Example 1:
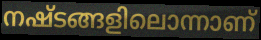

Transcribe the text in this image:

നഷ്ടങ്ങളിലൊന്നാണ്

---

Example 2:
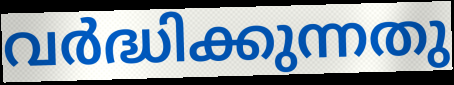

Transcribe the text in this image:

വർദ്ധിക്കുന്നതു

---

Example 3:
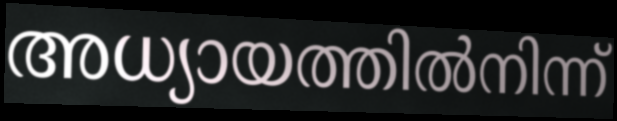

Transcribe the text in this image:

അധ്യായത്തിൽനിന്ന്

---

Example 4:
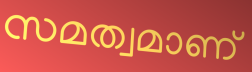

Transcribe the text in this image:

സമത്വമാണ്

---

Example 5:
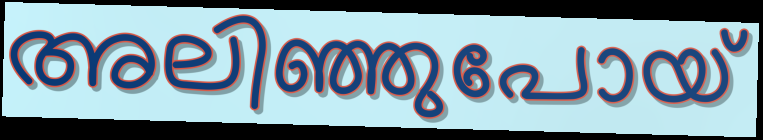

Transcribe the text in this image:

അലിഞ്ഞുപോയ്